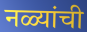
नळ्यांची